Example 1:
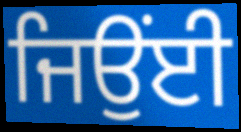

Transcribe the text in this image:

ਜਿਉਂਈ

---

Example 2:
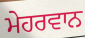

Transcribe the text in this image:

ਮੇਹਰਵਾਨ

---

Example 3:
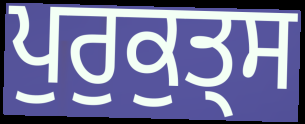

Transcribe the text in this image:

ਪੁਰੁਕੁਤ੍ਸ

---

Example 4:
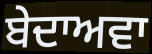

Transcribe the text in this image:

ਬੇਦਾਅਵਾ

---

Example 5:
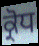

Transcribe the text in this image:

ਕ੍ਰੋਧ